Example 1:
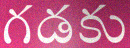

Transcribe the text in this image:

గడకు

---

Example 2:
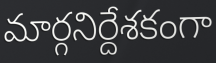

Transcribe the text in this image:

మార్గనిర్దేశకంగా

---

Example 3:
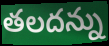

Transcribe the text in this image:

తలదన్ను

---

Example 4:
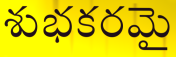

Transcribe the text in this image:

శుభకరమై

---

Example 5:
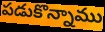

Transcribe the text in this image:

పడుకొన్నాము